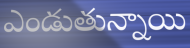
ఎండుతున్నాయి